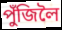
পুঁজিলৈ